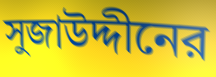
সুজাউদ্দীনের